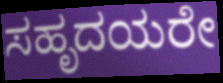
ಸಹೃದಯರೇ